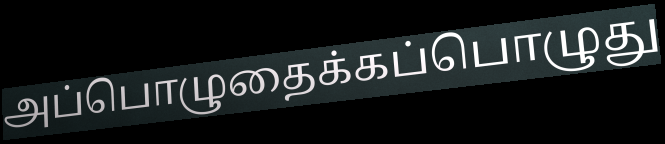
அப்பொழுதைக்கப்பொழுது